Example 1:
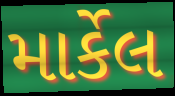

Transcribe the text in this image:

માર્કેલ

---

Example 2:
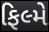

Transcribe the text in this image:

ફિલ્મે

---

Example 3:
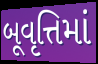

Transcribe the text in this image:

બૂવૃત્તિમાં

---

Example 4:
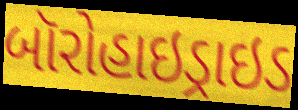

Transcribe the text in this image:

બૉરોહાઇડ્રાઇડ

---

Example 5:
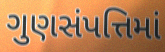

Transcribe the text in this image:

ગુણસંપત્તિમાં